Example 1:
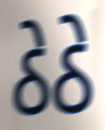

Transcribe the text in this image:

ઠેઠે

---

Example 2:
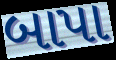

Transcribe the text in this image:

બાપા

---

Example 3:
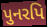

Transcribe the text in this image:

પુનરપિ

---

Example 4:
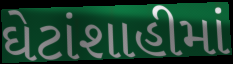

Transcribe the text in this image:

ઘેટાંશાહીમાં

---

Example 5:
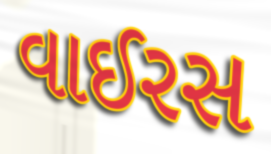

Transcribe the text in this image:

વાઈરસ